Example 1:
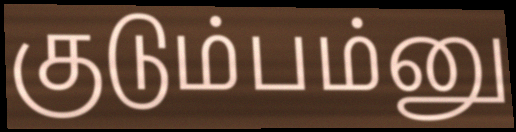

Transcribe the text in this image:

குடும்பம்னு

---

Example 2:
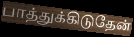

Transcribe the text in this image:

பாத்துக்கிடுதேன்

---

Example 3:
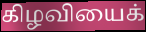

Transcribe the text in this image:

கிழவியைக்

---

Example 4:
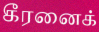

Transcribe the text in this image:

கீரனைக்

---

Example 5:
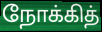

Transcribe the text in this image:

நோக்கித்